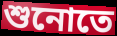
শুনোতে